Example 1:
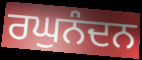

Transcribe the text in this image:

ਰਘੁਨੰਦਨ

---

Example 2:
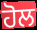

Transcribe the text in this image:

ਹੋਲ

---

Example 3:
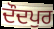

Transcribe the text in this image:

ਦੌਦਪੁਰ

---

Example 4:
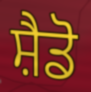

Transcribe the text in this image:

ਸ਼ੈਡੋ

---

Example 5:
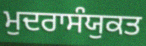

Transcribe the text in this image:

ਮੁਦਰਾਸੰਯੁਕਤ